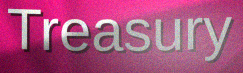
Treasury